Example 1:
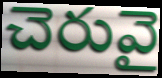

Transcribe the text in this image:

చెరువై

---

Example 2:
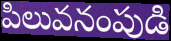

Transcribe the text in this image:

పిలువనంపుడి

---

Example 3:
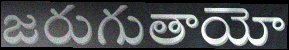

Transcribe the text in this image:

జరుగుతాయో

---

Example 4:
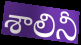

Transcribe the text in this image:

శాలినీ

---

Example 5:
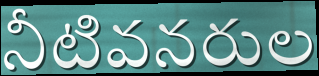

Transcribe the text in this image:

నీటివనరుల